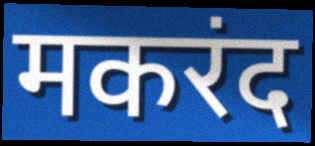
मकरंद